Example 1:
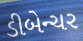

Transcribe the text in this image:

ડીબેન્ચર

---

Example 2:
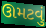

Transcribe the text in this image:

ઊમટવું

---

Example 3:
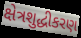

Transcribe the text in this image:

ક્ષેત્રશુદ્ધીકરણ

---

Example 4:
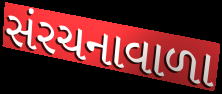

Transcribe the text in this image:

સંરચનાવાળા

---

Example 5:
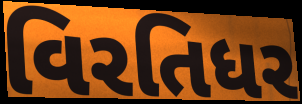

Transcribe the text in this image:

વિરતિધર